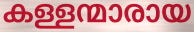
കള്ളന്മാരായ